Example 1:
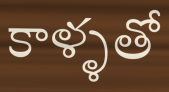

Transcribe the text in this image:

కాళ్ళతో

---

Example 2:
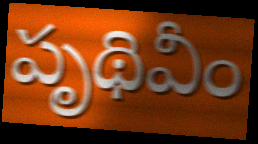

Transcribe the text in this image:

పృథివీం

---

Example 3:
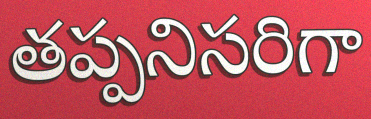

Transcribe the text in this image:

తప్పనిసరిగా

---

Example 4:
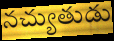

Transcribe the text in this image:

నచ్యుతుడు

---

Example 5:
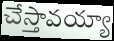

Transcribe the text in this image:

చేస్తావయ్యా